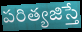
పరిత్యజిస్తే